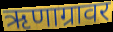
ऋणाग्रावर